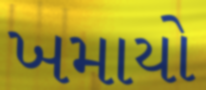
ખમાયો